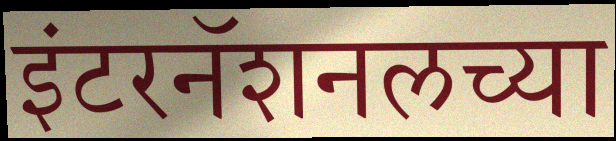
इंटरनॅशनलच्या